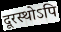
दूरस्थोऽपि